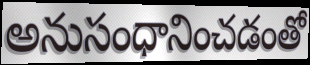
అనుసంధానించడంతో